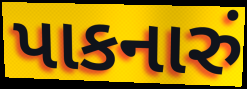
પાકનારું